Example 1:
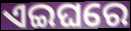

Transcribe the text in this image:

ଏଇଘରେ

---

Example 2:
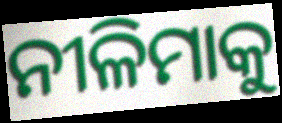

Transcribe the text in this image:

ନୀଳିମାକୁ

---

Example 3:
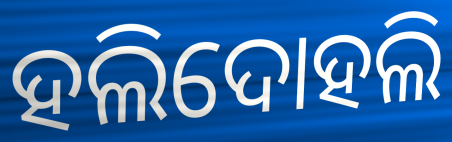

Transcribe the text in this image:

ହଲିଦୋହଲି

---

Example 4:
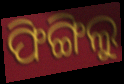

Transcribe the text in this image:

ଫିଙ୍ଗିଲୁ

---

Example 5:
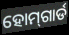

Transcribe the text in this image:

ହୋମ୍‌ଗାର୍ଡ